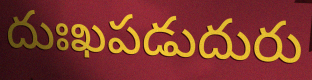
దుఃఖపడుదురు